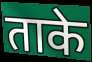
ताके